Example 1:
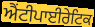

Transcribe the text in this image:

ਐਂਟੀਪਾਈਰੇਟਿਕ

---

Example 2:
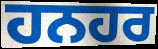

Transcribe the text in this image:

ਹਨਹਰ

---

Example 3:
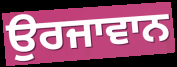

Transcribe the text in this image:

ਉਰਜਾਵਾਨ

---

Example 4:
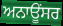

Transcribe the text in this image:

ਅਨਾਊਂਸਰ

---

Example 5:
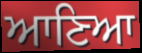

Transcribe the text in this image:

ਆਣਿਆ